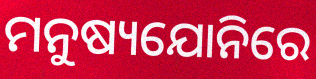
ମନୁଷ୍ୟଯୋନିରେ